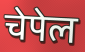
चेपेल